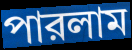
পারলাম